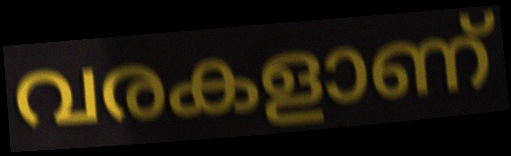
വരകളാണ്